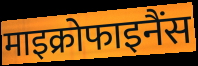
माइक्रोफाइनैंस